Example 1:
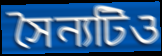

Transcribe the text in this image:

সৈন্যটিও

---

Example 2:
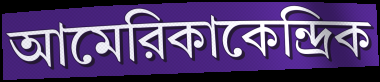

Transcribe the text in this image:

আমেরিকাকেন্দ্রিক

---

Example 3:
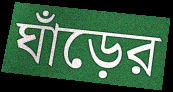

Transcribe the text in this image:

ঘাঁড়ের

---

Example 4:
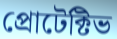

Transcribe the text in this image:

প্রোটেক্টিভ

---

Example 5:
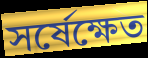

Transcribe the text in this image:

সর্ষেক্ষেত